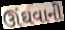
ઊંઘવાની